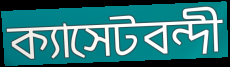
ক্যাসেটবন্দী